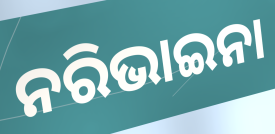
ନରିଭାଇନା